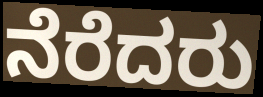
ನೆರೆದರು